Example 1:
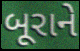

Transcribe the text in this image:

બૂરાને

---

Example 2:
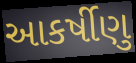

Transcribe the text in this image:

આકર્ષીણુ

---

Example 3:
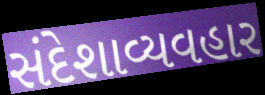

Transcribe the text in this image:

સંદેશાવ્યવહાર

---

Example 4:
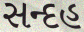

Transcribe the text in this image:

સન્દહ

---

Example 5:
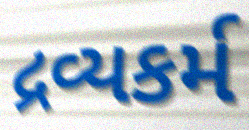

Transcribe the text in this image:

દ્રવ્યકર્મ